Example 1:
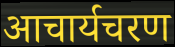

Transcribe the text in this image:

आचार्यचरण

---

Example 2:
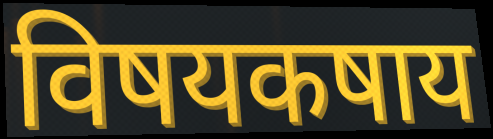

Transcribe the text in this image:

विषयकषाय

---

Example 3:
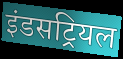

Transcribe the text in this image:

इंडसट्रियल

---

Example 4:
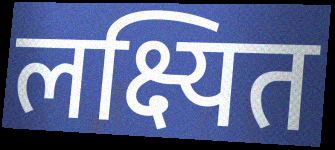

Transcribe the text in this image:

लक्ष्यित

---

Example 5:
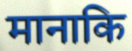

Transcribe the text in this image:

मानाकि